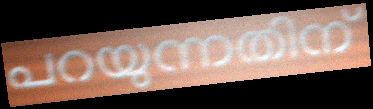
പറയുന്നതിന്